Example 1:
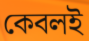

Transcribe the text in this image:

কেবলই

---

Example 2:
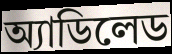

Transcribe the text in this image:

অ্যাডিলেড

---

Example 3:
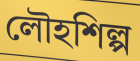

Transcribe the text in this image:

লৌহশিল্প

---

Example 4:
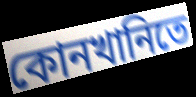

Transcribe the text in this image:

কোনখানিতে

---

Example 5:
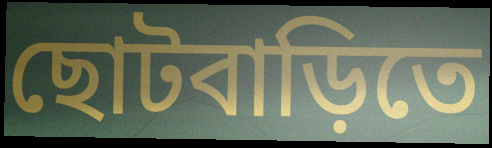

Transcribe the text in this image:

ছোটবাড়িতে